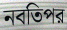
নবতিপর